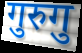
गुरुगु